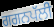
ਗਗਨਪੱਲੀ